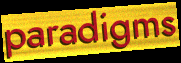
paradigms